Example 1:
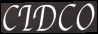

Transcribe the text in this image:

CIDCO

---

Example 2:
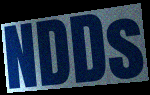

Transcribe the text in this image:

NDDs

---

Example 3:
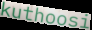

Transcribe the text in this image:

kuthoosi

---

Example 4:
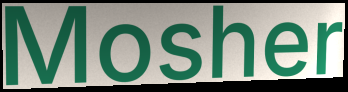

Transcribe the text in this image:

Mosher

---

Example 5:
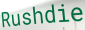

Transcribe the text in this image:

Rushdie